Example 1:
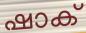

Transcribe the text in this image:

ഷാക്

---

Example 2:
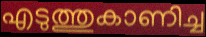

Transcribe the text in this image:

എടുത്തുകാണിച്ച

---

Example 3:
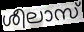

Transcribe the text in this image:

ശീലാസ്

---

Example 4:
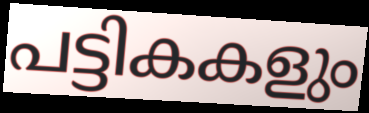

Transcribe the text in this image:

പട്ടികകളും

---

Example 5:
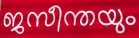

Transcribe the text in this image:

ജസീന്തയും